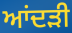
ਆਂਦੜੀ